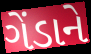
ગેંડાને